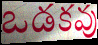
ఒడకవు